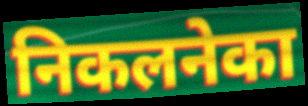
निकलनेका